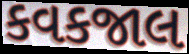
કવકજાલ